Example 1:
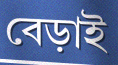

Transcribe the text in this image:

বেড়াই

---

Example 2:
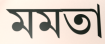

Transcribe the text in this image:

মমতা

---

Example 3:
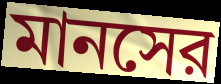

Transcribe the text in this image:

মানসের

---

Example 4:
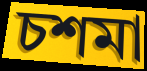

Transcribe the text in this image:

চশমা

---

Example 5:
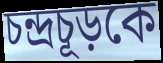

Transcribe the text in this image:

চন্দ্রচূড়কে